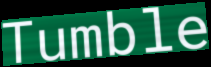
Tumble